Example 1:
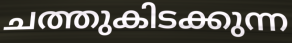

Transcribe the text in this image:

ചത്തുകിടക്കുന്ന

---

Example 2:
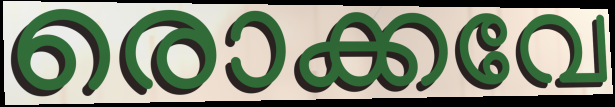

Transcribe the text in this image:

രൊക്കവേ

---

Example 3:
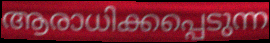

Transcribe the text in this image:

ആരാധിക്കപ്പെടുന്ന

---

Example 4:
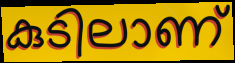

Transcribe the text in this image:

കുടിലാണ്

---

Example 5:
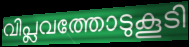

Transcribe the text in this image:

വിപ്ലവത്തോടുകൂടി